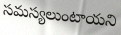
సమస్యలుంటాయని